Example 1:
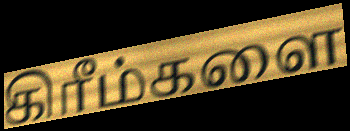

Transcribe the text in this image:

கிரீம்களை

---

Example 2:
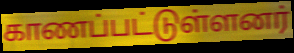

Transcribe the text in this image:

காணப்பட்டுள்ளனர்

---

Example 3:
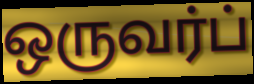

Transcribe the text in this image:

ஒருவர்ப்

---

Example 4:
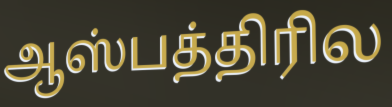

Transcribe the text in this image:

ஆஸ்பத்திரில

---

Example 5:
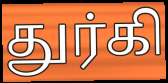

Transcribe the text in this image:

துர்கி